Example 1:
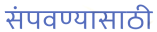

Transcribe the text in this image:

संपवण्यासाठी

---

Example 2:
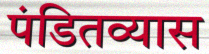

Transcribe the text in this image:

पंडितव्यास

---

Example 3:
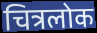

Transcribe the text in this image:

चित्रलोक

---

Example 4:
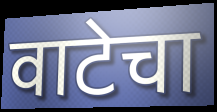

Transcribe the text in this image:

वाटेचा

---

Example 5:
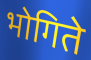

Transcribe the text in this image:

भोगिते